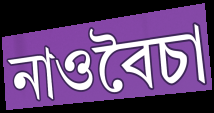
নাওবৈচা